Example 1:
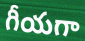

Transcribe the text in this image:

గీయగా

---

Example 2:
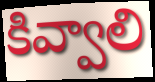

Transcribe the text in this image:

కివ్వాలి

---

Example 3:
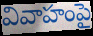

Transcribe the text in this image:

వివాహంపై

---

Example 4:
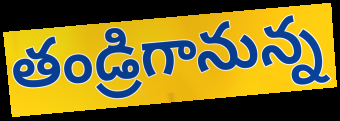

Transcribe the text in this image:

తండ్రిగానున్న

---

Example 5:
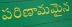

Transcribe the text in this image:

పరిణామమైన